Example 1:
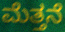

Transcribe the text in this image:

ಮೆತ್ತನೆ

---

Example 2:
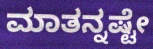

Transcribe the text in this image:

ಮಾತನ್ನಷ್ಟೇ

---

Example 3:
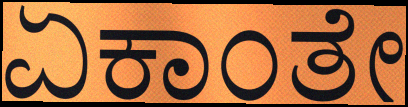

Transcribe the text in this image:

ಏಕಾಂತೇ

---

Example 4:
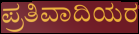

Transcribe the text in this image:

ಪ್ರತಿವಾದಿಯರ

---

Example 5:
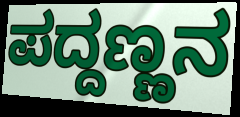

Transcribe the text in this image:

ಪದ್ದಣ್ಣನ